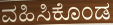
ವಹಿಸಿಕೊಂಡ